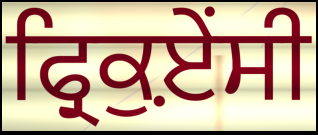
ਫ੍ਰਿਕ਼ੁਏਂਸੀ